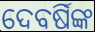
ଦେବର୍ଷିଙ୍କ